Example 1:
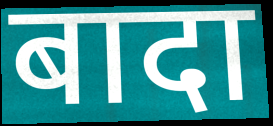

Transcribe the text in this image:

बादा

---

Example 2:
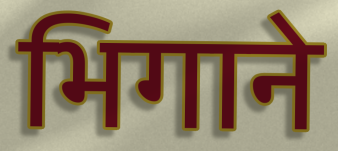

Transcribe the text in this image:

भिगाने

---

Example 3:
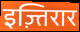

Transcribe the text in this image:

इज़्तिरार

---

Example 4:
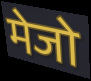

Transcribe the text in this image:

मेजो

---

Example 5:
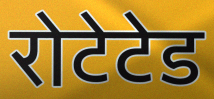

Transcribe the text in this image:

रोटेटेड